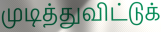
முடித்துவிட்டுக்